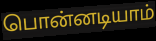
பொன்னடியாம்